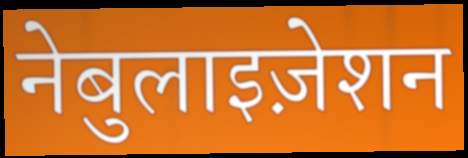
नेबुलाइज़ेशन